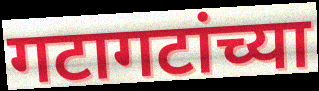
गटागटांच्या